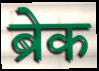
ब्रेक